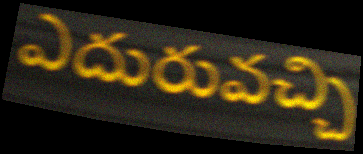
ఎదురువచ్చి